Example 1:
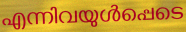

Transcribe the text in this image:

എന്നിവയുൾപ്പെടെ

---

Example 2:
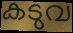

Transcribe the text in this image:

കടുവ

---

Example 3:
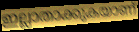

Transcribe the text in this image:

ഇല്ലാതാക്കുകയാണ്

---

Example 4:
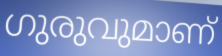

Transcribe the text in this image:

ഗുരുവുമാണ്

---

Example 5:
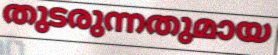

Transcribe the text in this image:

തുടരുന്നതുമായ